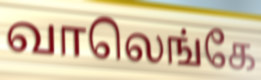
வாலெங்கே